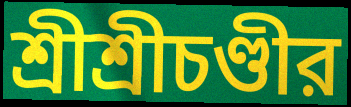
শ্রীশ্রীচণ্ডীর